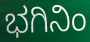
ಭಗಿನಿಂ